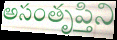
అసంతృప్తిని